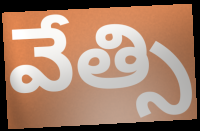
వేత్సి